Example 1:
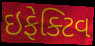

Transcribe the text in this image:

ઇફેક્ટિવ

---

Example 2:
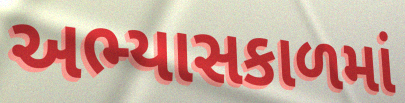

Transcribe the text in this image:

અભ્યાસકાળમાં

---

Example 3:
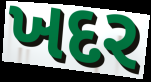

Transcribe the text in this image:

ખદર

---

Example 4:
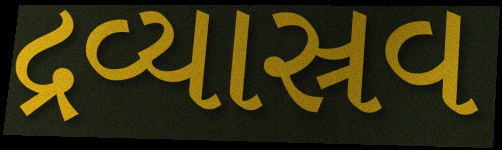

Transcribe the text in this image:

દ્રવ્યાસ્રવ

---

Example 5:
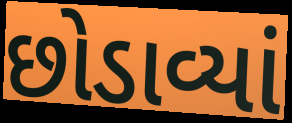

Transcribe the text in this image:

છોડાવ્યાં